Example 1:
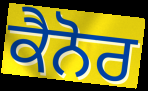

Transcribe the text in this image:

ਕੈਨੋਰ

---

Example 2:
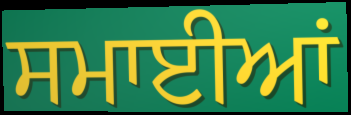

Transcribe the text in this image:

ਸਮਾਈਆਂ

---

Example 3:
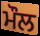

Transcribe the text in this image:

ਮੌਲ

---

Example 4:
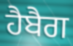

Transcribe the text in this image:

ਹੈਬੈਗ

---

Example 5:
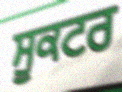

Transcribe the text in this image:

ਸੂਕਟਰ